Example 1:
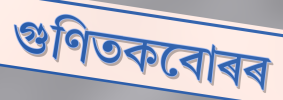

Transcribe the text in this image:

গুণিতকবোৰৰ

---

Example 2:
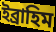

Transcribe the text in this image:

ইব্ৰাহিম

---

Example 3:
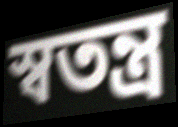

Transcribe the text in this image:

স্বতন্ত্ৰ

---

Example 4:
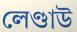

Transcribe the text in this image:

লেণ্ডাউ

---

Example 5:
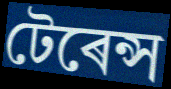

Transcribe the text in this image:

টেৰেন্স